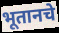
भूतानचे